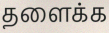
தளைக்க